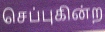
செப்புகின்ற